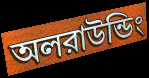
অলরাউন্ডিং